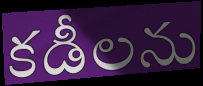
కడీలను